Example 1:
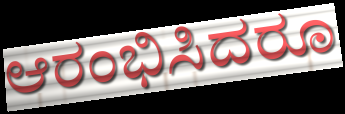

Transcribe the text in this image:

ಆರಂಭಿಸಿದರೂ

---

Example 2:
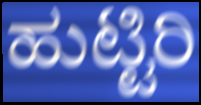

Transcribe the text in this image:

ಹುಟ್ಟಿರಿ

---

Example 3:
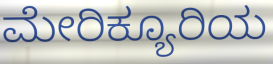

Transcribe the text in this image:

ಮೇರಿಕ್ಯೂರಿಯ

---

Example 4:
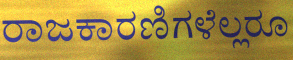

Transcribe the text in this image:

ರಾಜಕಾರಣಿಗಳೆಲ್ಲರೂ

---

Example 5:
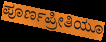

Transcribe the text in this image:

ಪೂರ್ಣಪ್ರೀತಿಯೂ